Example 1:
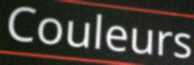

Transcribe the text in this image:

Couleurs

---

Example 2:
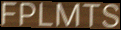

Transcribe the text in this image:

FPLMTS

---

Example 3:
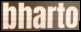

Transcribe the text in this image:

bharto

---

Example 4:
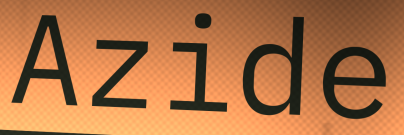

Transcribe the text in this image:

Azide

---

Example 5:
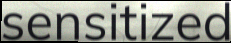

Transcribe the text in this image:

sensitized